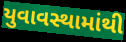
યુવાવસ્થામાંથી